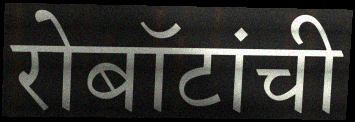
रोबॉटांची